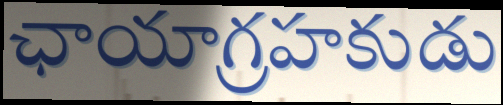
ఛాయాగ్రహకుడు